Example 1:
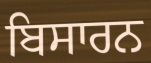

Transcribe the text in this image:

ਬਿਸਾਰਨ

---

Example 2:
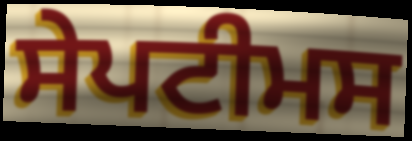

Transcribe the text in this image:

ਸੇਪਟੀਮਸ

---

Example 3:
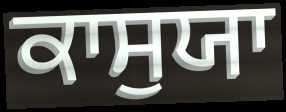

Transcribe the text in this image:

ਕਾਸੁਯਾ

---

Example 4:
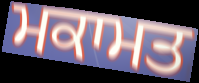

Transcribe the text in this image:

ਮਕਾਮਤ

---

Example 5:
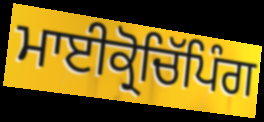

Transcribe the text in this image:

ਮਾਈਕ੍ਰੋਚਿੱਪਿੰਗ